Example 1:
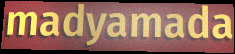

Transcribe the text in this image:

madyamada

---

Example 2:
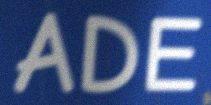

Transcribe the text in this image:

ADE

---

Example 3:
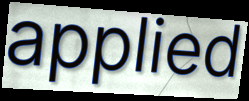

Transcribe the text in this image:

applied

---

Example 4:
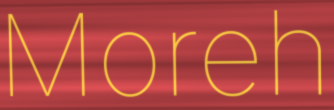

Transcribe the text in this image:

Moreh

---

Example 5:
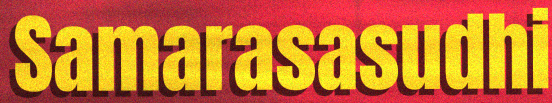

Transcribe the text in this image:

Samarasasudhi